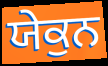
ਯੇਕੁਨ